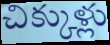
చిక్కుళ్లు